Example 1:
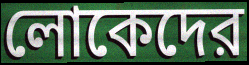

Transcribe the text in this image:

লোকেদের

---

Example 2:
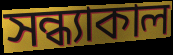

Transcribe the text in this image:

সন্ধ্যাকাল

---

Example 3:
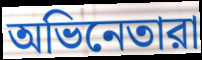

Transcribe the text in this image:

অভিনেতারা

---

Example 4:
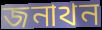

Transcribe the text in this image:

জনাথন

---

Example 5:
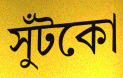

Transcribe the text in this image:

সুঁটকো